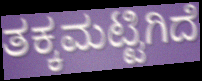
ತಕ್ಕಮಟ್ಟಿಗಿದೆ